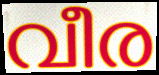
വീര